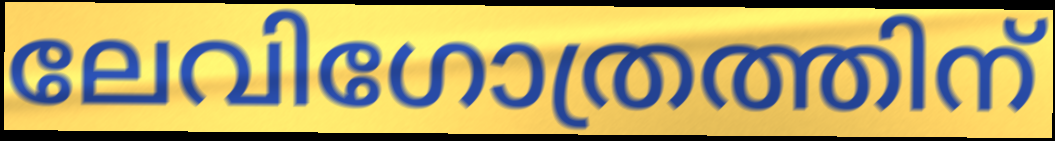
ലേവിഗോത്രത്തിന്